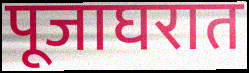
पूजाघरात